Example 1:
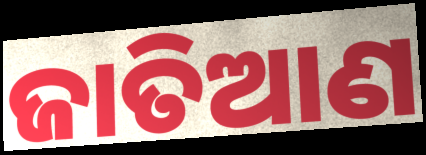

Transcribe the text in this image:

ଜାତିଆଣ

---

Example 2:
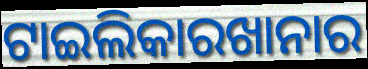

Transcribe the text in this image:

ଟାଇଲିକାରଖାନାର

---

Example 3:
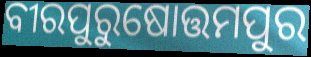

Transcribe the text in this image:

ବୀରପୁରୁଷୋତ୍ତମପୁର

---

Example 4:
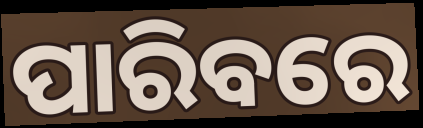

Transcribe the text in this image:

ପାରିବରେ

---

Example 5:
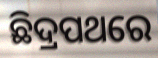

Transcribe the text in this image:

ଛିଦ୍ରପଥରେ